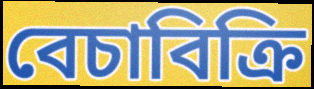
বেচাবিক্রি